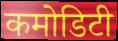
कमोडिटी